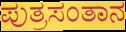
ಪುತ್ರಸಂತಾನ